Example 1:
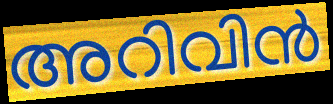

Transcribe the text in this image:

അറിവിൻ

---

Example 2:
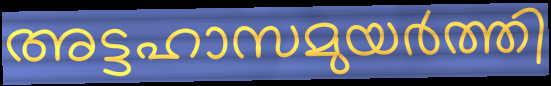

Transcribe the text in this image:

അട്ടഹാസമുയർത്തി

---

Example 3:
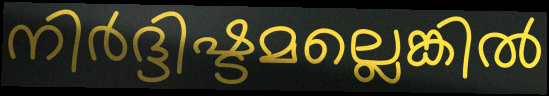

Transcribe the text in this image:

നിർദ്ദിഷ്ടമല്ലെങ്കിൽ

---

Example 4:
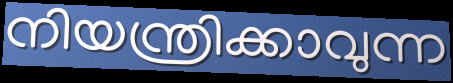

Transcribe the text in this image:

നിയന്ത്രിക്കാവുന്ന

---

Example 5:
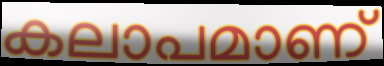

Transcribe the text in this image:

കലാപമാണ്